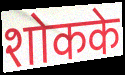
शोकके